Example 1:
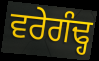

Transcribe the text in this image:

ਵਰੇਗੰਢ੍ਹ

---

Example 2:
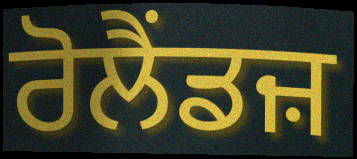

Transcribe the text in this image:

ਰੋਲੈਂਡਜ਼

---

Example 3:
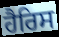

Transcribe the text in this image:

ਹੈਰਿਸ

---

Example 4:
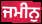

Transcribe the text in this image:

ਜਮੀਨੁ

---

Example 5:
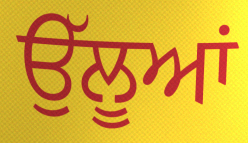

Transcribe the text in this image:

ਉੱਲੂਆਂ